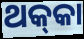
ଥକ୍‌କା